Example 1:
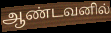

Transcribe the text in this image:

ஆண்டவனில்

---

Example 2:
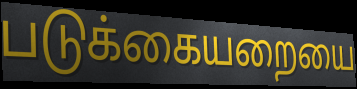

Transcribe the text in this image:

படுக்கையறையை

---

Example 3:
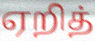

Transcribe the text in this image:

ஏறித்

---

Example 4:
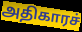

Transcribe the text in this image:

அதிகாரச்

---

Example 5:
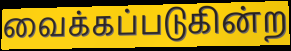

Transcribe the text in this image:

வைக்கப்படுகின்ற